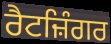
ਰੈਟਜ਼ਿੰਗਰ